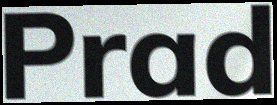
Prad